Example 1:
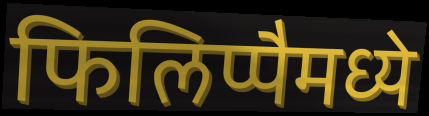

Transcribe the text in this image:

फिलिप्पैमध्ये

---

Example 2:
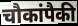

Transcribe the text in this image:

चौकांपैकी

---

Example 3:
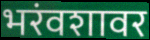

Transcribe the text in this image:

भरंवशावर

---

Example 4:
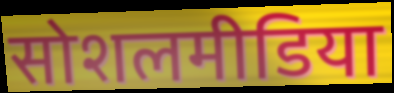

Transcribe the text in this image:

सोशलमीडिया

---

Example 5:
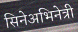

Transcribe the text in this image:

सिनेअभिनेत्री